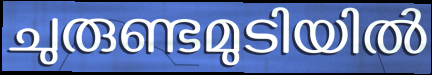
ചുരുണ്ടമുടിയിൽ